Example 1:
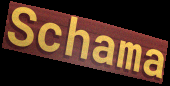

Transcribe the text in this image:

Schama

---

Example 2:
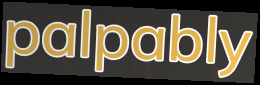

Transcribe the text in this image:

palpably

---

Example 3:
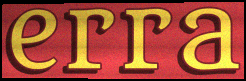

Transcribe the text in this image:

erra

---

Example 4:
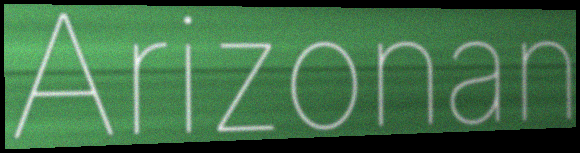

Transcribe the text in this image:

Arizonan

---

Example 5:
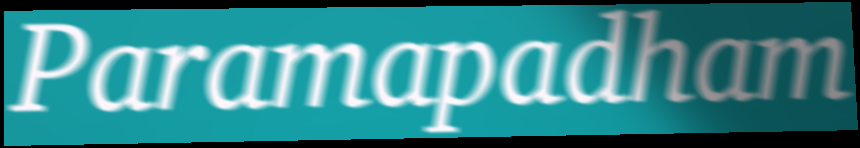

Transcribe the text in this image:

Paramapadham